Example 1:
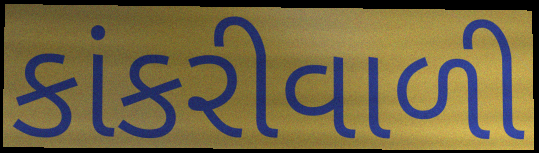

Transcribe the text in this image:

કાંકરીવાળી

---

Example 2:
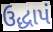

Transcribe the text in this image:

ઉદ્ધાપં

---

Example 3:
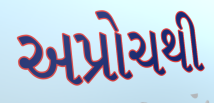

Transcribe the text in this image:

અપ્રોચથી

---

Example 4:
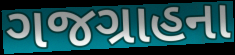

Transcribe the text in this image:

ગજગ્રાહના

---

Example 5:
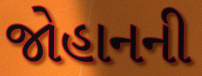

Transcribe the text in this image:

જોહાનની